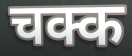
चक्क